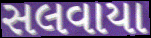
સલવાયા